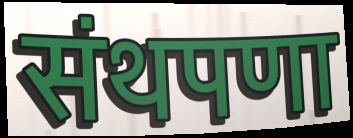
संथपणा